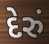
દેરું